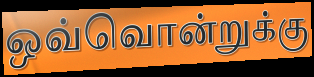
ஒவ்வொன்றுக்கு